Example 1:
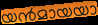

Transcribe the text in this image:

യൻമായയാ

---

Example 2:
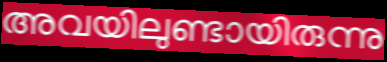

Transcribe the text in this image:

അവയിലുണ്ടായിരുന്നു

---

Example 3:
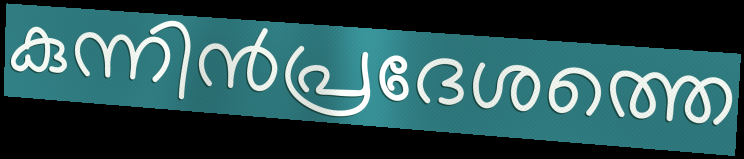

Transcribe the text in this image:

കുന്നിൻപ്രദേശത്തെ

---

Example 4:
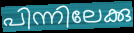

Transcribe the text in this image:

പിന്നിലേക്കു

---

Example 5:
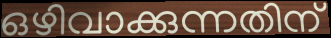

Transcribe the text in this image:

ഒഴിവാക്കുന്നതിന്